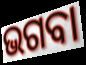
ଭଗବା